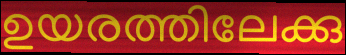
ഉയരത്തിലേക്കു